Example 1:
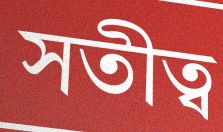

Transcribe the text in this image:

সতীত্ব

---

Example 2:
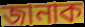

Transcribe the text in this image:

জানাক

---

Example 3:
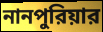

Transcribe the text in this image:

নানপুরিয়ার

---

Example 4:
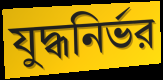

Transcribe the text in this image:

যুদ্ধনির্ভর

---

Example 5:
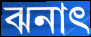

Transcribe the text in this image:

ঝনাৎ